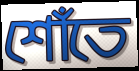
শোঁতে